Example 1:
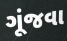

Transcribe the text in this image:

ગૂંજવા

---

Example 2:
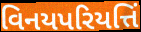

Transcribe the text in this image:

વિનયપરિયત્તિં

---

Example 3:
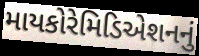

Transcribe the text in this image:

માયકોરેમિડિએશનનું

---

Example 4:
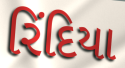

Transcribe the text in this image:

રિંદિયા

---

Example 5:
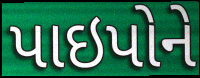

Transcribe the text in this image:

પાઇપોને